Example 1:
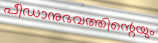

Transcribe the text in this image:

പീഡാനുഭവത്തിന്റെയും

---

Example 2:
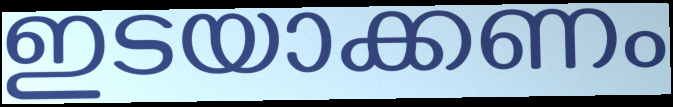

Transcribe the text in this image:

ഇടയാക്കണം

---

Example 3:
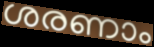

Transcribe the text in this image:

ശരണാം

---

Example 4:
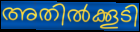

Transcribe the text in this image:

അതിൽക്കൂടി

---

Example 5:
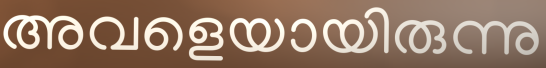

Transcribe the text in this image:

അവളെയായിരുന്നു